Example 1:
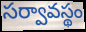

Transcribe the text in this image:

సర్వావస్థం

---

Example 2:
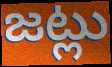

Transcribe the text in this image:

జట్లు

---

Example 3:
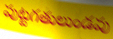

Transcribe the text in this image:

పుట్టగతులుండవు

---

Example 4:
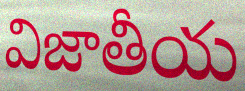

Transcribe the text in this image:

విజాతీయ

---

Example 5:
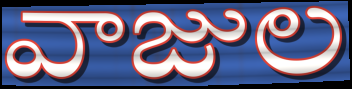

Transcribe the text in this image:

వాజుల